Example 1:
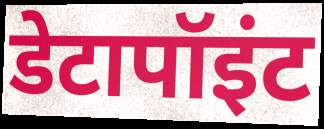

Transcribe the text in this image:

डेटापॉइंट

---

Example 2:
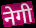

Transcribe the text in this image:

नेगी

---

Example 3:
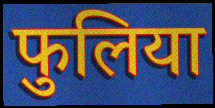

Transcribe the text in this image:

फुलिया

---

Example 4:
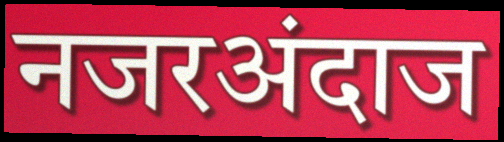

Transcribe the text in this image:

नजरअंदाज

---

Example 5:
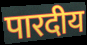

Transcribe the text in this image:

पारदीय